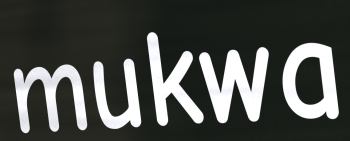
mukwa